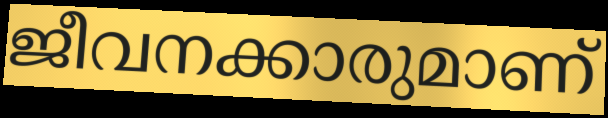
ജീവനക്കാരുമാണ്